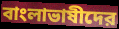
বাংলাভাষীদের